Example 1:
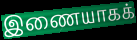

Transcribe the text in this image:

இணையாகக்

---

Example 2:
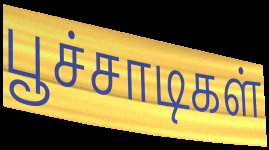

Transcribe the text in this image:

பூச்சாடிகள்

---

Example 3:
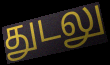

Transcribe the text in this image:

துடலு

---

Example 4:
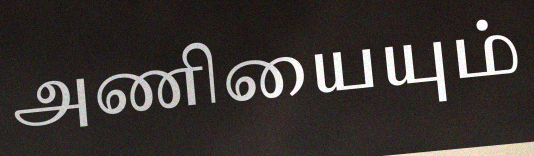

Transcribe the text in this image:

அணியையும்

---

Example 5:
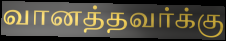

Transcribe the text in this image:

வானத்தவர்க்கு